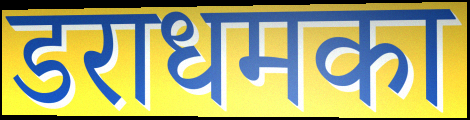
डराधमका